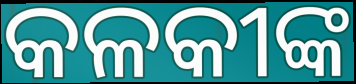
କଳକୀଙ୍କ